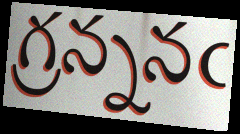
గ్రన్ననఁ